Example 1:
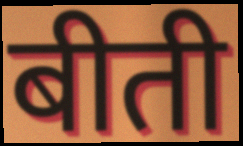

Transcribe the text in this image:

बीती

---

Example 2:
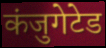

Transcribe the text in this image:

कंजुगेटेड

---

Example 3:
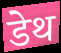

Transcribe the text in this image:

डेथ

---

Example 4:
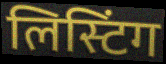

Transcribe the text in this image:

लिस्टिंग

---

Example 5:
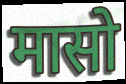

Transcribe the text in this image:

मासो